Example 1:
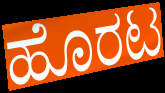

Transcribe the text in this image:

ಹೊರಟ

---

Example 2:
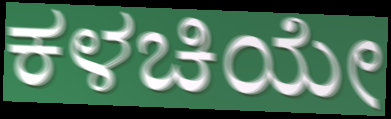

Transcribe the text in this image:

ಕಳಚಿಯೇ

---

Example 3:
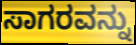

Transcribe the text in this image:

ಸಾಗರವನ್ನು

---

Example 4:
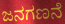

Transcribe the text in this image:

ಜನಗಣನೆ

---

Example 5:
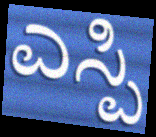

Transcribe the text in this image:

ಎಸ್ಪಿ